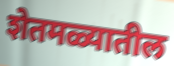
शेतमळ्यातील